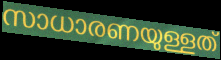
സാധാരണയുള്ളത്